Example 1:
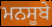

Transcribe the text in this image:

ਮਨਸੂਬੇ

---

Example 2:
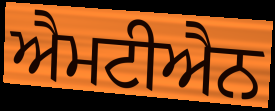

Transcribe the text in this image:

ਐਮਟੀਐਨ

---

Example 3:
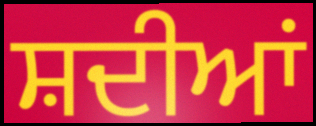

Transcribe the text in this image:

ਸ਼ਦੀਆਂ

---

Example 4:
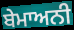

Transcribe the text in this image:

ਬੇਮਾਅਨੀ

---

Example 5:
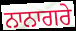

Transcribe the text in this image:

ਨਾਨਾਗਰੇ